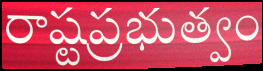
రాష్టప్రభుత్వం